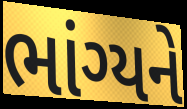
ભાંગ્યને